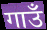
गाउँ